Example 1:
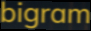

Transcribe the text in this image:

bigram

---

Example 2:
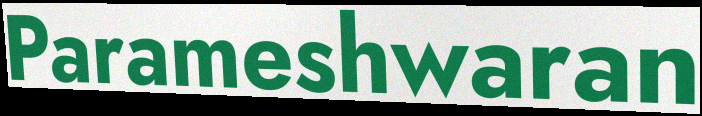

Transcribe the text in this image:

Parameshwaran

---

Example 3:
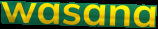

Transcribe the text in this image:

wasana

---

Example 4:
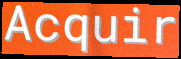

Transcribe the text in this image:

Acquir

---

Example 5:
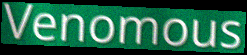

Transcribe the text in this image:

Venomous